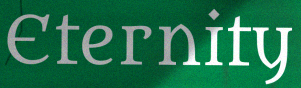
Eternity